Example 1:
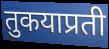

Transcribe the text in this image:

तुकयाप्रती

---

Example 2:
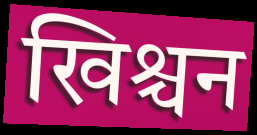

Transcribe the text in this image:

खिश्चन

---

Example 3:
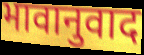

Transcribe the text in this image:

भावानुवाद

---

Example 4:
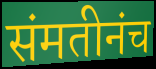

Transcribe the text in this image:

संमतीनंच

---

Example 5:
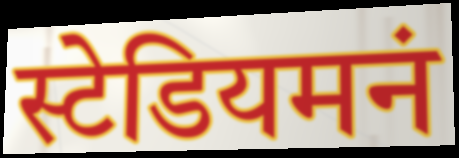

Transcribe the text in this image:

स्टेडियमनं